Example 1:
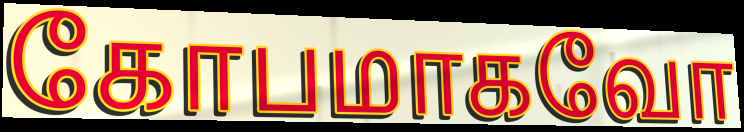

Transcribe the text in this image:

கோபமாகவோ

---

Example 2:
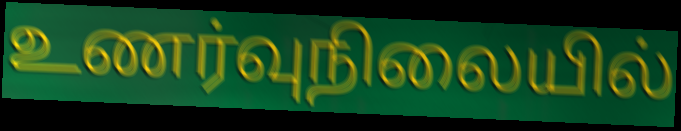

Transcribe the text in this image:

உணர்வுநிலையில்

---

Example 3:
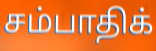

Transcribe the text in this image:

சம்பாதிக்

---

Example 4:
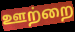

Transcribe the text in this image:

ஊற்றை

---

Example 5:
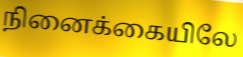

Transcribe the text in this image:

நினைக்கையிலே